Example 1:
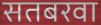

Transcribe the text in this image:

सतबरवा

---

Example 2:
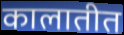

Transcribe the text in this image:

कालातीत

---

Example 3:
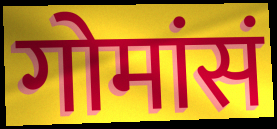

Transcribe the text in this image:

गोमांसं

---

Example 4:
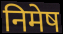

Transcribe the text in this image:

निमेष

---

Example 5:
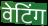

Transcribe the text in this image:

वेटिंग